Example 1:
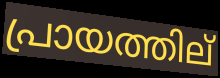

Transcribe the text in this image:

പ്രായത്തില്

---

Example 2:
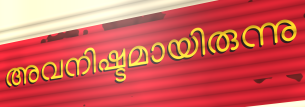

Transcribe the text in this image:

അവനിഷ്ടമായിരുന്നു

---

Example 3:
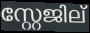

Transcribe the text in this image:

സ്റ്റേജില്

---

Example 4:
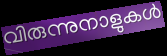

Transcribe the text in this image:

വിരുന്നുനാളുകൾ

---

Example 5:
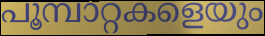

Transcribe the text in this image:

പൂമ്പാറ്റകളെയും